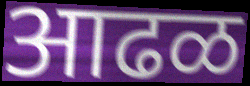
आढळ